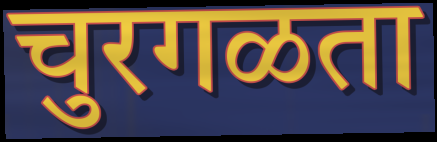
चुरगळता